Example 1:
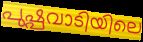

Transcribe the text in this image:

പുഷ്പവാടിയിലെ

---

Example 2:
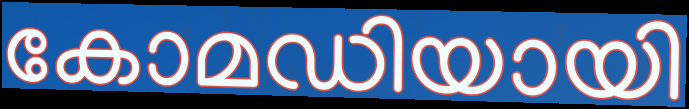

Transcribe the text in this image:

കോമഡിയായി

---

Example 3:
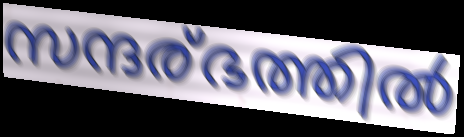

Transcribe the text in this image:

സന്ദര്ഭത്തിൽ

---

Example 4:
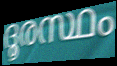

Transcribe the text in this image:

ദൂരസ്ഥം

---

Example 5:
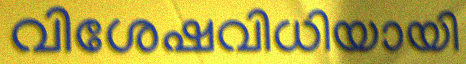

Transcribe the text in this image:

വിശേഷവിധിയായി